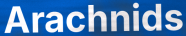
Arachnids